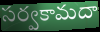
సర్వకామదా